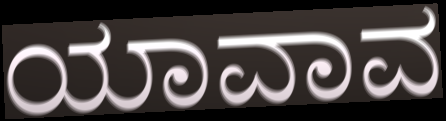
ಯಾವಾವ